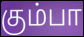
கும்பா